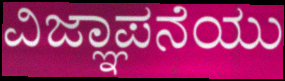
ವಿಜ್ಞಾಪನೆಯು